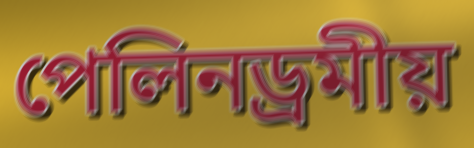
পেলিনড্ৰমীয়